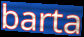
barta